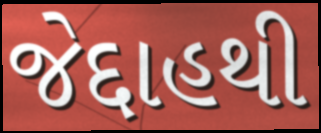
જેદ્દાહથી